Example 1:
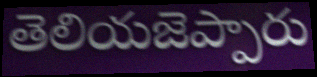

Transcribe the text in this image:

తెలియజెప్పారు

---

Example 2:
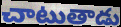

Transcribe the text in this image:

చాటుతాడు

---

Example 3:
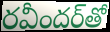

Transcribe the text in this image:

రవీందర్‌తో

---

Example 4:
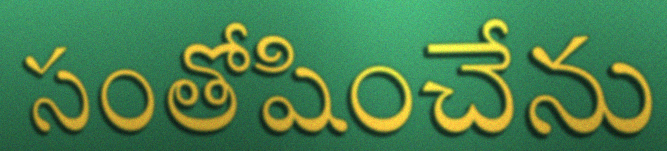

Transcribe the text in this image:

సంతోషించేను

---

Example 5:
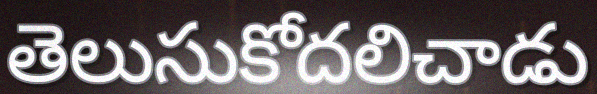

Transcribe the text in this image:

తెలుసుకోదలిచాడు